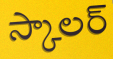
స్కాలర్